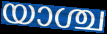
യാശ്ച